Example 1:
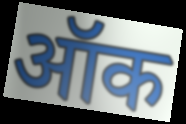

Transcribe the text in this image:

ऑक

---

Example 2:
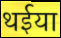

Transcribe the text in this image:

थईया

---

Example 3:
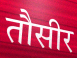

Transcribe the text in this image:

तौसीर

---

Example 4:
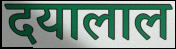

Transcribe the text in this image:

दयालाल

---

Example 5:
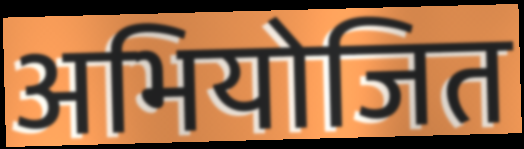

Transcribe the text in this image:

अभियोजित